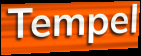
Tempel